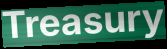
Treasury